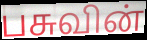
பசுவின்